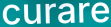
curare